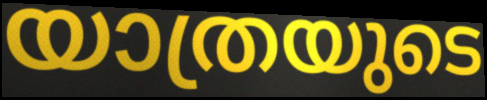
യാത്രയുടെ